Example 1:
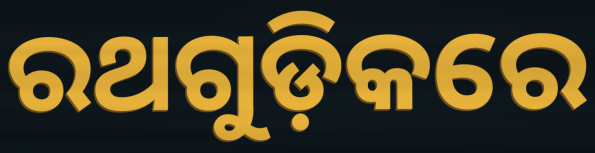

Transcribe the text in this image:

ରଥଗୁଡ଼ିକରେ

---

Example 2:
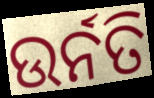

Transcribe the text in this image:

ଉର୍ନତି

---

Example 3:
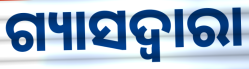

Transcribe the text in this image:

ଗ୍ୟାସଦ୍ଵାରା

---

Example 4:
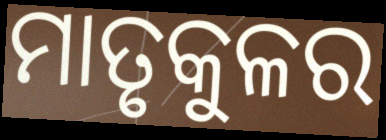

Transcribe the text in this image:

ମାତୃକୁଳର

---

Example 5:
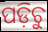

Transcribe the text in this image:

ପଡ଼ିଚୁ